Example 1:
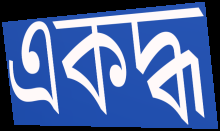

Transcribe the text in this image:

একদ্ধ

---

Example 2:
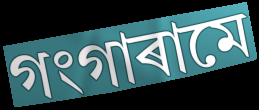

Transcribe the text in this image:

গংগাৰামে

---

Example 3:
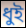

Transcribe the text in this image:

ধুই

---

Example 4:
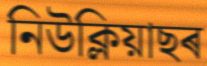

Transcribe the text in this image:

নিউক্লিয়াছৰ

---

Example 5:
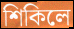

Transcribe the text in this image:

শিকিলে